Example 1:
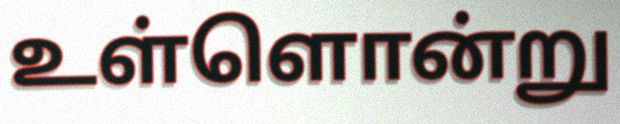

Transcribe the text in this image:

உள்ளொன்று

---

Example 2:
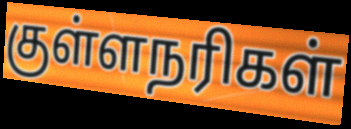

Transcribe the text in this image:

குள்ளநரிகள்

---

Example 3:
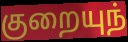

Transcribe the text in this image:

குறையுந்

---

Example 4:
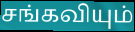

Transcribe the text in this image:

சங்கவியும்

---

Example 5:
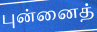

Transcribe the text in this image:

புன்னைத்